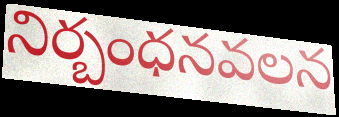
నిర్బంధనవలన